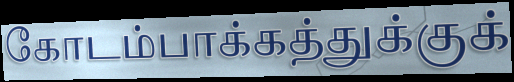
கோடம்பாக்கத்துக்குக்